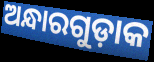
ଅନ୍ଧାରଗୁଡ଼ାକ